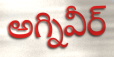
అగ్నివీర్